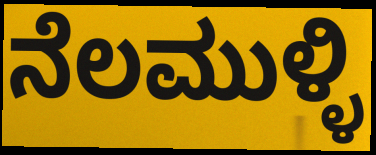
ನೆಲಮುಳ್ಳಿ